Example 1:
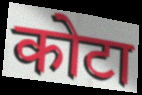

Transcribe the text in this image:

कोटा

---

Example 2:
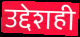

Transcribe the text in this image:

उद्देशही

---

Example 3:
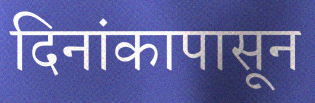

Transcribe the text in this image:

दिनांकापासून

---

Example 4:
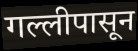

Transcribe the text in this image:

गल्लीपासून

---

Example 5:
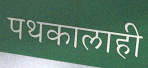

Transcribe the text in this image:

पथकालाही